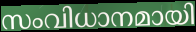
സംവിധാനമായി